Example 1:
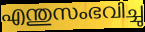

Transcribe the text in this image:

എന്തുസംഭവിച്ചു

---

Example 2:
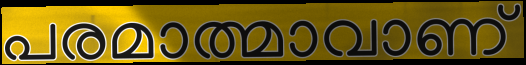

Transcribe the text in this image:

പരമാത്മാവാണ്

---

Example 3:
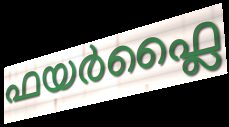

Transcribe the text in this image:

ഫയർഫ്ലൈ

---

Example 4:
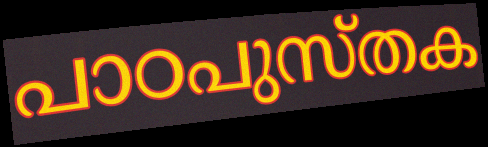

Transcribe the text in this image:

പാഠപുസ്തക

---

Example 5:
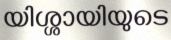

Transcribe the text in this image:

യിശ്ശായിയുടെ